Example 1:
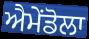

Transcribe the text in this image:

ਐਮੇਂਡੋਲਾ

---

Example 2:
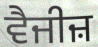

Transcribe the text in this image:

ਵੈਜੀਜ਼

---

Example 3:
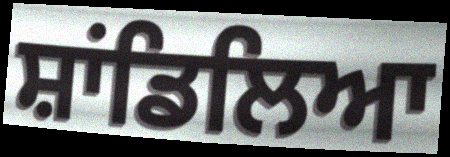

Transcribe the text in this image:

ਸ਼ਾਂਡਿਲਿਆ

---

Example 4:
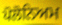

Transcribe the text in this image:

ਪੋਲੋਨਿਅਮ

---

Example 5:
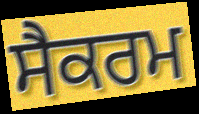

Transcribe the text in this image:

ਸੈਕਰਮ